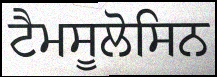
ਟੈਮਸੂਲੋਸਿਨ